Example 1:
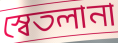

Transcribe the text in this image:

স্বেতলানা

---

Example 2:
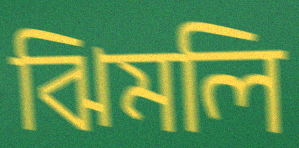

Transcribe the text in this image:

ঝিমলি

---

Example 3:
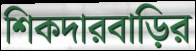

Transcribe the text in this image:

শিকদারবাড়ির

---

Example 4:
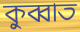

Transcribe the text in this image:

কুব্বাত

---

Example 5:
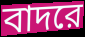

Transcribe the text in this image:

বাদরে